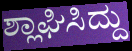
ಶ್ಲಾಘಿಸಿದ್ದು